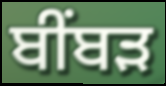
ਬੀੰਬੜ